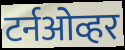
टर्नओव्हर